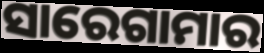
ସାରେଗାମାର